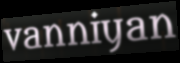
vanniyan